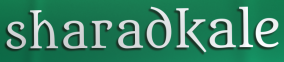
sharadkale